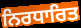
ਨਿਰਧਾਰਿਤ